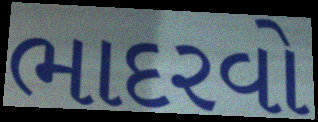
ભાદરવો